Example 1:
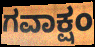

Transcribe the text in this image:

ಗವಾಕ್ಷಂ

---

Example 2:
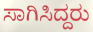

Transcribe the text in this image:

ಸಾಗಿಸಿದ್ದರು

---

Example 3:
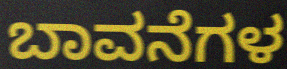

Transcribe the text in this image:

ಬಾವನೆಗಳ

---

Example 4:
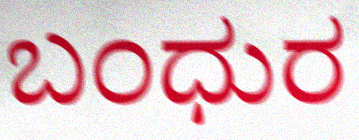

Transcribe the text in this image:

ಬಂಧುರ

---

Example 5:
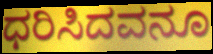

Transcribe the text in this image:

ಧರಿಸಿದವನೂ